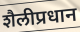
शैलीप्रधान